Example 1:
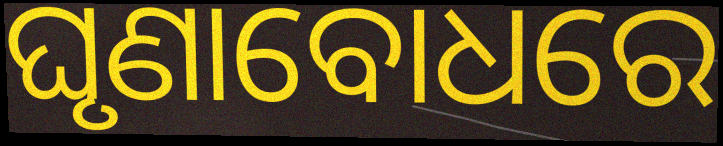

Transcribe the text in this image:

ଘୃଣାବୋଧରେ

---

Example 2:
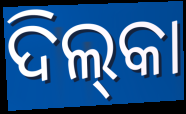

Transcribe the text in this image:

ଦିଲ୍‌କା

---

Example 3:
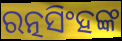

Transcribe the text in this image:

ରତ୍ନସିଂହଙ୍କ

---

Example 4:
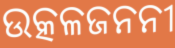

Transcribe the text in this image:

ଉତ୍କଳଜନନୀ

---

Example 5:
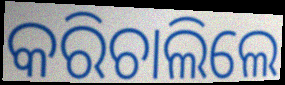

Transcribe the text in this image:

କରିଚାଲିଲେ